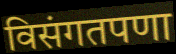
विसंगतपणा